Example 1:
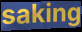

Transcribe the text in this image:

saking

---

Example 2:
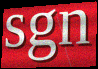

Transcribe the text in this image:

sgn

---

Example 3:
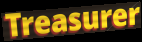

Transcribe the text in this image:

Treasurer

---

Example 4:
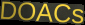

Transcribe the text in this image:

DOACs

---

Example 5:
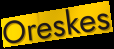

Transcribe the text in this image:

Oreskes